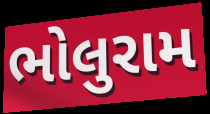
ભોલુરામ